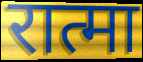
रात्मा